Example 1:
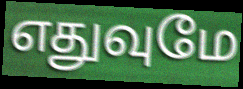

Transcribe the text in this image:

எதுவுமே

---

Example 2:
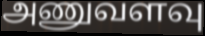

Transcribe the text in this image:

அணுவளவு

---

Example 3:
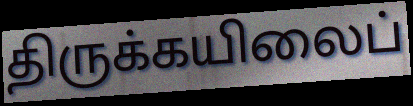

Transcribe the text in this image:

திருக்கயிலைப்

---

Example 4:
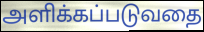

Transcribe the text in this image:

அளிக்கப்படுவதை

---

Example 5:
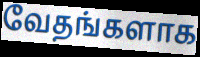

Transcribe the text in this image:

வேதங்களாக